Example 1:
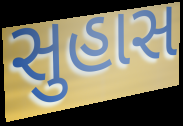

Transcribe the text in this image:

સુહાસ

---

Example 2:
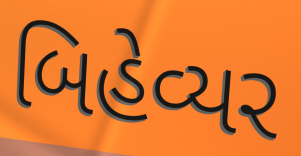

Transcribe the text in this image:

બિહેવ્યર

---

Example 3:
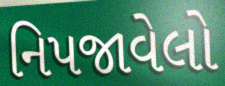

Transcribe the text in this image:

નિપજાવેલો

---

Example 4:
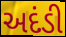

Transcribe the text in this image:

અદંડી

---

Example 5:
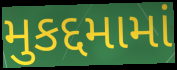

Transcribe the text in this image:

મુકદ્દમામાં